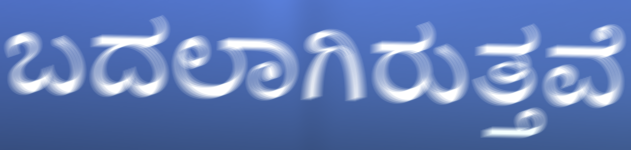
ಬದಲಾಗಿರುತ್ತವೆ